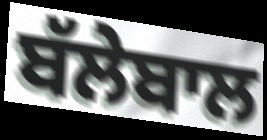
ਬੱਲੇਬਾਲ